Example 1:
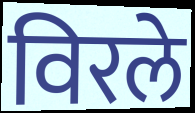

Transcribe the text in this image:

विरले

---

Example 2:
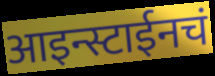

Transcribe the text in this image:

आइन्स्टाईनचं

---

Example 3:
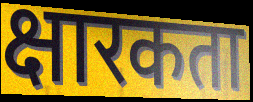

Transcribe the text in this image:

क्षारकता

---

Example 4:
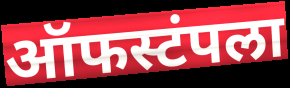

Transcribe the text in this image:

ऑफस्टंपला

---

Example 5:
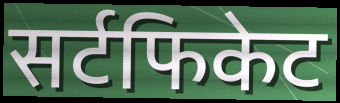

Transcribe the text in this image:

सर्टफिकेट